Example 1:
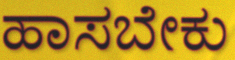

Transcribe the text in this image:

ಹಾಸಬೇಕು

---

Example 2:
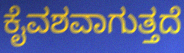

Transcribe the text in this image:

ಕೈವಶವಾಗುತ್ತದೆ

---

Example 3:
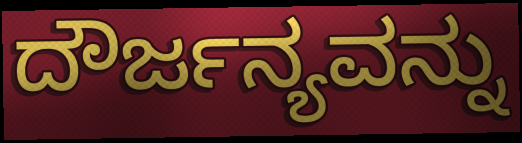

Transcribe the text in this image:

ದೌರ್ಜನ್ಯವನ್ನು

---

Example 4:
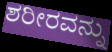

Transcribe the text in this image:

ಶರೀರವನ್ನು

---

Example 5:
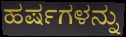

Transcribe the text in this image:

ಹರ್ಷಗಳನ್ನು